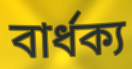
বার্ধক্য